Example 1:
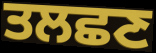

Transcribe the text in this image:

ਤਲਛਣ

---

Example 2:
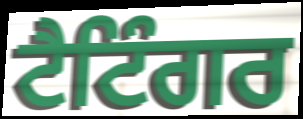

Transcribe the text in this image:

ਟੈਟਿੰਗਰ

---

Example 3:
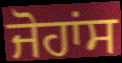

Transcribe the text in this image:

ਜੋਹਾਂਸ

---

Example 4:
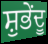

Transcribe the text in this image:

ਸ਼ੁਭੇਂਦੂ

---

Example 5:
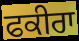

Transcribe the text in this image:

ਫਕੀਰਾ